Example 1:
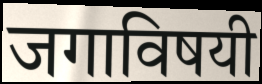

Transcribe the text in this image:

जगाविषयी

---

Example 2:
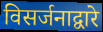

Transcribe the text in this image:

विसर्जनाद्वारे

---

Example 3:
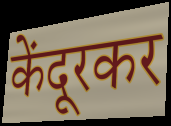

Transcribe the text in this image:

केंदूरकर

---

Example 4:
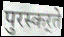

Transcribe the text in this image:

पुरस्कर्ते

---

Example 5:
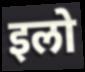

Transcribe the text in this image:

इलो